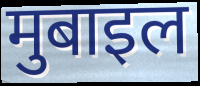
मुबाइल